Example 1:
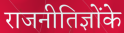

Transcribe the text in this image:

राजनीतिज्ञोंके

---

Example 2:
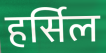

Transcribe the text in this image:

हर्सिल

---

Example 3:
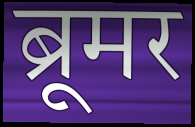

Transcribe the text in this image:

ब्रूमर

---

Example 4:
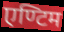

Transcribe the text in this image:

एण्टिम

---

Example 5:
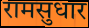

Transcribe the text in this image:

रामसुधार